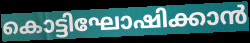
കൊട്ടിഘോഷിക്കാൻ